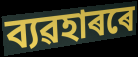
ব্যৱহাৰৰে